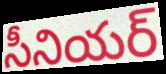
సీనియర్